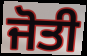
ਜੋਤੀ